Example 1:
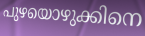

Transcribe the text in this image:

പുഴയൊഴുക്കിനെ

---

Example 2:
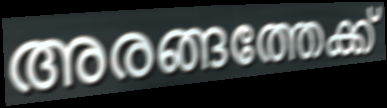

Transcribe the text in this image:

അരങ്ങത്തേക്ക്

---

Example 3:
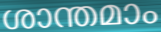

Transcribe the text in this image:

ശാന്തമാം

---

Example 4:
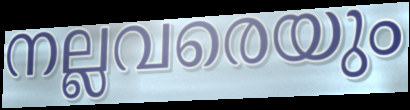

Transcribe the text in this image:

നല്ലവരെയും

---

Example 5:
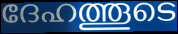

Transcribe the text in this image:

ദേഹത്തൂടെ